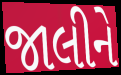
જાલીને